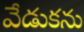
వేడుకను